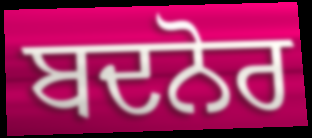
ਬਦਨੋਰ